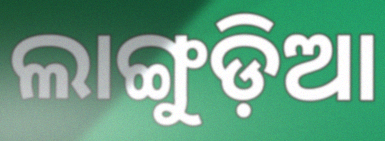
ଲାଙ୍ଗୁଡ଼ିଆ